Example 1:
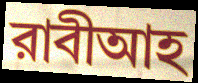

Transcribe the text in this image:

রাবীআহ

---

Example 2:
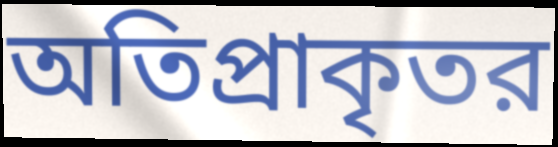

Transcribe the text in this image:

অতিপ্রাকৃতর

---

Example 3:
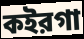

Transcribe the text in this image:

কইরগা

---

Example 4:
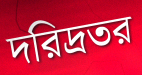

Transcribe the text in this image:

দরিদ্রতর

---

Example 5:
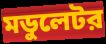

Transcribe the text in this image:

মডুলেটর